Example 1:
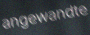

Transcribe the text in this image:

angewandte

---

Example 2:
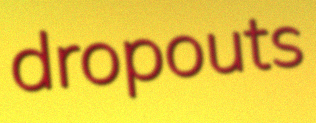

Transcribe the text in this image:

dropouts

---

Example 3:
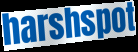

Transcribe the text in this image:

harshspot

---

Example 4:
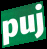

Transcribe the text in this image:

puj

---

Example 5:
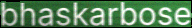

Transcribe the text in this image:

bhaskarbose